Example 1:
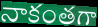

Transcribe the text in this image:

నాకంతగా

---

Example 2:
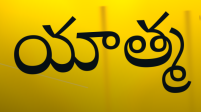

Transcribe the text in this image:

యాత్మ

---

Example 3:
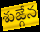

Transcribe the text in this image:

శుఙ్గేన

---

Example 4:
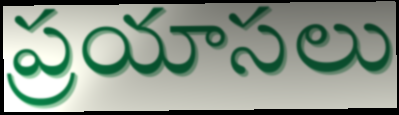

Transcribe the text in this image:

ప్రయాసలు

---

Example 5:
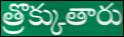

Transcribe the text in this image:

త్రొక్కుతారు